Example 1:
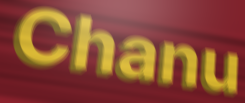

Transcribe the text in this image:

Chanu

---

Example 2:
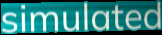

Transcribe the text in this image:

simulated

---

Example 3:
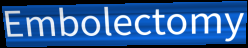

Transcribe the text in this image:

Embolectomy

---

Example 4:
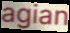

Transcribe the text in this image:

agian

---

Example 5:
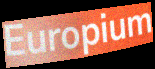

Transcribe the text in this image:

Europium